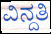
ವಿನ್ದತಿ